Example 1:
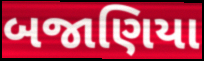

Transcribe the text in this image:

બજાણિયા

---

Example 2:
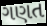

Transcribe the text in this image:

ગણત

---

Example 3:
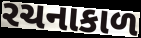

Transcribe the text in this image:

રચનાકાળ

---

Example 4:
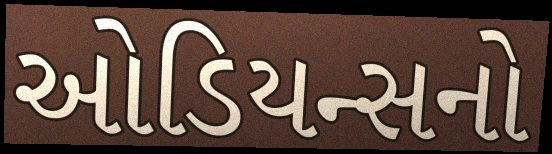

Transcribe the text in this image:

ઓડિયન્સનો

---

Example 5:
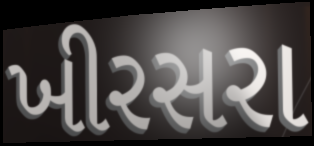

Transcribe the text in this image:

ખીરસરા